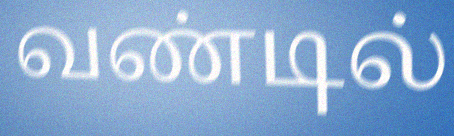
வண்டில்